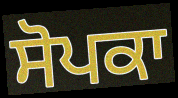
ਸੋਪਕਾ